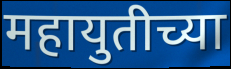
महायुतीच्या